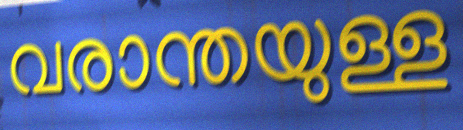
വരാന്തയുള്ള